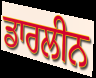
ਡਾਰਲੀਨ